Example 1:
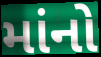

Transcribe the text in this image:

માંનો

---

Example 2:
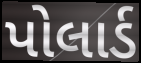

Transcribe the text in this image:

પોલાર્ડ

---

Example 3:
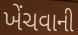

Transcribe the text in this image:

ખેંચવાની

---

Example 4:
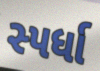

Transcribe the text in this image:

સ્પર્ધા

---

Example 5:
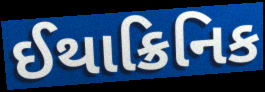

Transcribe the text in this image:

ઈથાક્રિનિક